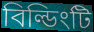
বিল্ডিংটি